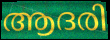
ആദരി